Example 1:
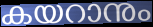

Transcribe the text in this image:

കയറാനും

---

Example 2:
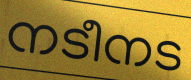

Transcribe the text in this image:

നടീനട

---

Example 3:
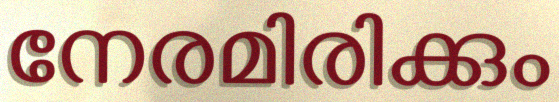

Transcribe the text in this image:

നേരമിരിക്കും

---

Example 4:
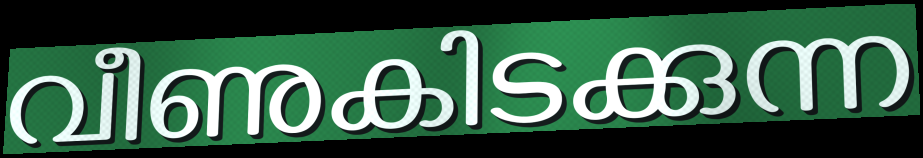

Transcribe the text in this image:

വീണുകിടക്കുന്ന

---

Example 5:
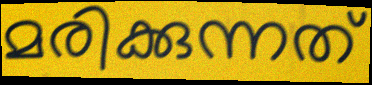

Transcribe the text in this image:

മരിക്കുന്നത്